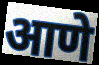
आणे